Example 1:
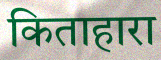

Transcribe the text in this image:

किताहारा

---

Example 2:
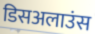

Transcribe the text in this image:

डिसअलाउंस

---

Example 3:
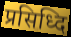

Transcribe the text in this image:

प्रसिध्दि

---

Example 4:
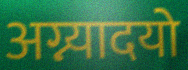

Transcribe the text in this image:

अग्न्यादयो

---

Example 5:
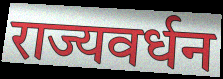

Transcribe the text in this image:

राज्यवर्धन